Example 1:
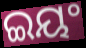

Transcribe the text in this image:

ଇୟଂ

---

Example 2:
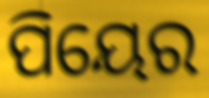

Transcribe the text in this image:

ପିୟେର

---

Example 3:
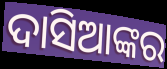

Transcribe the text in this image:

ଦାସିଆଙ୍କର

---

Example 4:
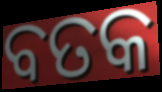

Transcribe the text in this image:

ବତକ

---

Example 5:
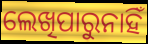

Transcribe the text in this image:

ଲେଖିପାରୁନାହିଁ